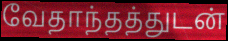
வேதாந்தத்துடன்